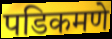
पडिकमणे